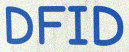
DFID